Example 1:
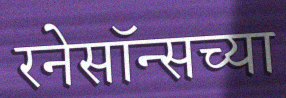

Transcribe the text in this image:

रनेसॉन्सच्या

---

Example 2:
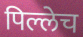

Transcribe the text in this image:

पिल्लेच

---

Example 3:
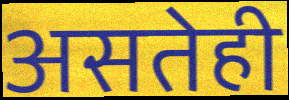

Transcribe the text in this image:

असतेही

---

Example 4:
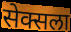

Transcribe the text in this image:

सेक्सला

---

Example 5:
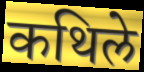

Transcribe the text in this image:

कथिले